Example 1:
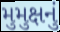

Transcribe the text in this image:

મુમુક્ષનું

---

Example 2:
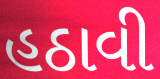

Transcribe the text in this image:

હઠાવી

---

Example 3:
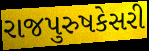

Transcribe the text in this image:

રાજપુરુષકેસરી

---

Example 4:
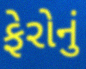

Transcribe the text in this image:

ફેરોનું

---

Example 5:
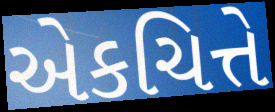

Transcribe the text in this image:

એકચિત્તે